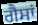
ਗੈਸਾਂ